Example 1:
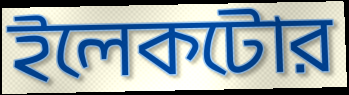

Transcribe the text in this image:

ইলেকটোর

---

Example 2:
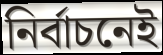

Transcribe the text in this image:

নির্বাচনেই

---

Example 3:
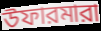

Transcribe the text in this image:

উফারমারা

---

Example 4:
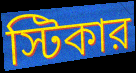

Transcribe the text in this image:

স্টিকার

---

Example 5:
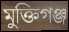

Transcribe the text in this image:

মুক্তিগঞ্জ